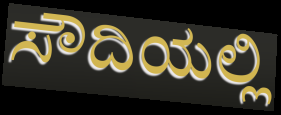
ಸೌದಿಯಲ್ಲಿ